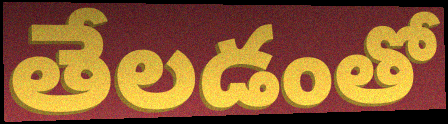
తేలడంతో